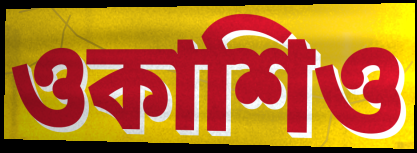
ওকাশিও